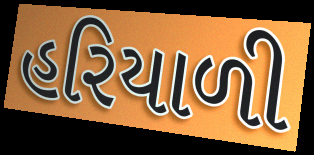
હરિયાળી